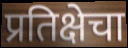
प्रतिक्षेचा